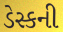
ડેસ્કની